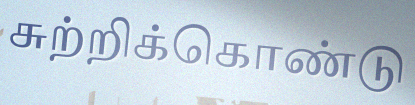
சுற்றிக்கொண்டு